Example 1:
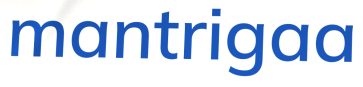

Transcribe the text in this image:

mantrigaa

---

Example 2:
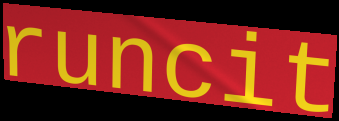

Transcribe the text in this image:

runcit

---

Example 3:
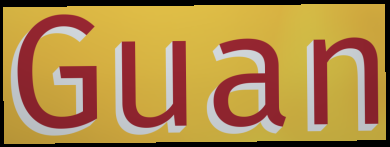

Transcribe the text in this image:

Guan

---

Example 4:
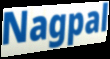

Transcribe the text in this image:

Nagpal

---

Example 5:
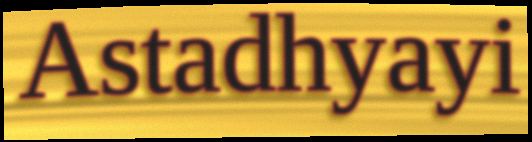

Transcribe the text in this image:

Astadhyayi